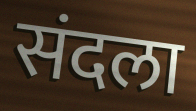
संदला